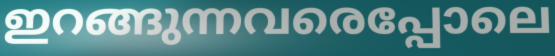
ഇറങ്ങുന്നവരെപ്പോലെ